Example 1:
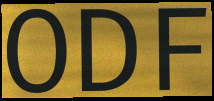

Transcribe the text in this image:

ODF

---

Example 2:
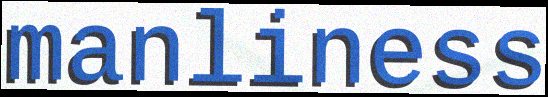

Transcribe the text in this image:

manliness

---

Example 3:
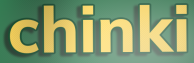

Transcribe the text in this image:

chinki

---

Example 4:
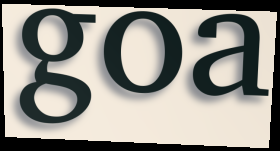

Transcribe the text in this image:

goa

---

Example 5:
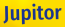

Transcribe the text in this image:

Jupitor